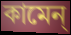
কামেন্